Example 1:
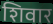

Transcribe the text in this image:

शिवार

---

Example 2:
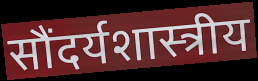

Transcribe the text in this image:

सौंदर्यशास्त्रीय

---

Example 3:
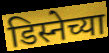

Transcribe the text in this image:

डिस्नेच्या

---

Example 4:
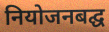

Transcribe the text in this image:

नियोजनबद्घ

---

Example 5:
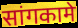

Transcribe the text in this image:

सांगकामे